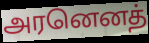
அரனெனத்